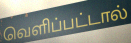
வெளிப்பட்டால்